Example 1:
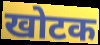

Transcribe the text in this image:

खोटक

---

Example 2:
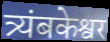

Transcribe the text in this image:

त्र्यंबकेश्वर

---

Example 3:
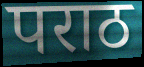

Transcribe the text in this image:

पराठ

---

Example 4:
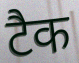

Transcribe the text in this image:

टैक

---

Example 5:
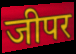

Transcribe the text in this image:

जीपर